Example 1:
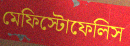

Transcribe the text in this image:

মেফিস্টোফেলিস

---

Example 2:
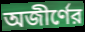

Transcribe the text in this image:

অজীর্ণের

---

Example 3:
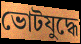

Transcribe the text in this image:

ভোটযুদ্ধে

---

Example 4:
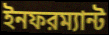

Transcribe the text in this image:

ইনফরম্যান্ট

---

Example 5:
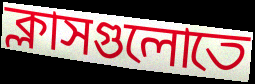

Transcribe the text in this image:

ক্লাসগুলোতে